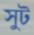
সুট